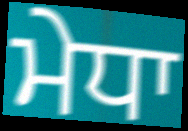
ਮੇਧਾ